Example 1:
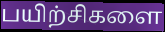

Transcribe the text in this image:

பயிற்சிகளை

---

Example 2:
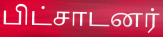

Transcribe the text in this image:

பிட்சாடனர்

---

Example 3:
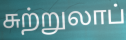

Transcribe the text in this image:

சுற்றுலாப்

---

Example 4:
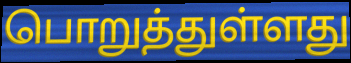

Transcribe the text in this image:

பொறுத்துள்ளது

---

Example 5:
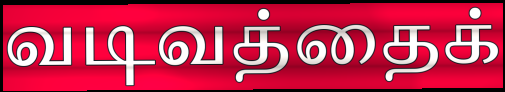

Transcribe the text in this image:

வடிவத்தைக்